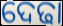
ଦେଢା